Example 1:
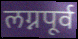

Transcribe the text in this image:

लग्नपूर्व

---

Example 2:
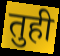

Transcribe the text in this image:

तुही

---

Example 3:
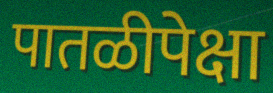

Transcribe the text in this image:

पातळीपेक्षा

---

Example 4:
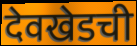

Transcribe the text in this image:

देवखेडची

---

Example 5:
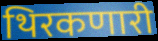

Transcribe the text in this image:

थिरकणारी